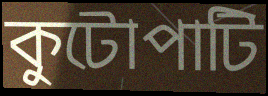
কুটোপাটি